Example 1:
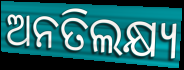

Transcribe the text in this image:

ଅନତିଲକ୍ଷ୍ୟ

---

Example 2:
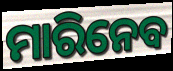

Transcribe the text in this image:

ମାରିନେବ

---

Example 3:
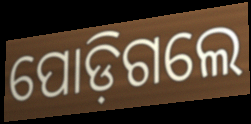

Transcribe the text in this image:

ପୋଡ଼ିଗଲେ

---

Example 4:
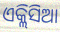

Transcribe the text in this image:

ଏକ୍ଲିସିଆ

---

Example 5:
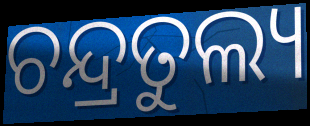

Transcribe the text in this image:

ଚନ୍ଦ୍ରତୁଲ୍ୟ